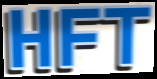
HFT